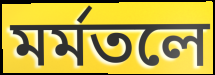
মর্মতলে